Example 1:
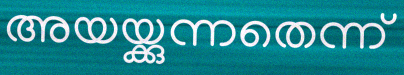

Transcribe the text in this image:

അയയ്ക്കുന്നതെന്ന്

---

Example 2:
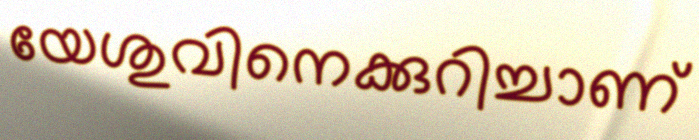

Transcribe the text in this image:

യേശുവിനെക്കുറിച്ചാണ്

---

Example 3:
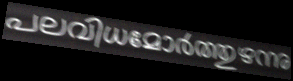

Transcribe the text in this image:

പലവിധമോർത്തുഴന്നു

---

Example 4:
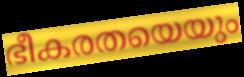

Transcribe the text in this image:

ഭീകരതയെയും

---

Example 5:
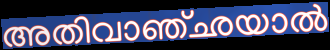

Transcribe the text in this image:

അതിവാഞ്ഛയാൽ